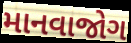
માનવાજોગ